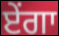
ਏਂਗਾ